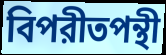
বিপরীতপন্থী